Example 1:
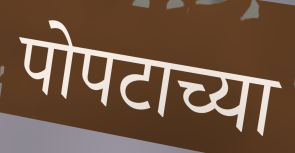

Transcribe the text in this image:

पोपटाच्या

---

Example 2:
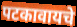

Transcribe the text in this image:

पटकावायचे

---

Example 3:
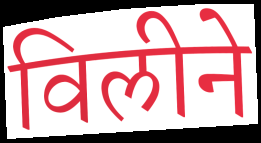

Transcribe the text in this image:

विलीने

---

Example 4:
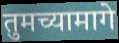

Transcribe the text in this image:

तुमच्यामागे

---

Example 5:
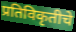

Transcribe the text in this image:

प्रतिविकृतीचे